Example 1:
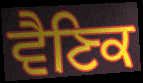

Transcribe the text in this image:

ਵੈਣਿਕ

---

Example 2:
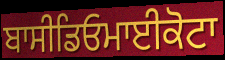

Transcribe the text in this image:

ਬਾਸੀਡਿਓਮਾਈਕੋਟਾ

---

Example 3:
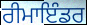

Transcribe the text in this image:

ਰੀਮਾਇੰਡਰ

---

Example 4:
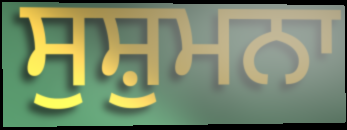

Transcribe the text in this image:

ਸੁਸ਼ੁਮਨਾ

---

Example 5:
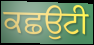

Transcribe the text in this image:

ਕਛਉਟੀ